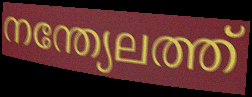
നന്ത്യേലത്ത്